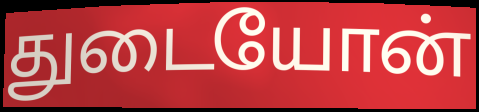
துடையோன்